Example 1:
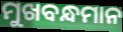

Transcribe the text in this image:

ମୁଖବନ୍ଧମାନ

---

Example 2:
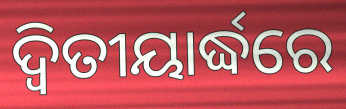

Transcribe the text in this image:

ଦ୍ଵିତୀୟାର୍ଦ୍ଧରେ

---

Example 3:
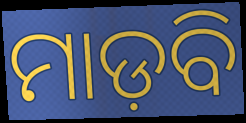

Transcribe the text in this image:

ମାଡ଼ବି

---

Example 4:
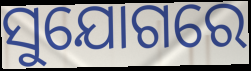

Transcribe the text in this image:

ସୁଯୋଗରେ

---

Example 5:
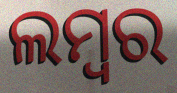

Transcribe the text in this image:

ଲମ୍ବର